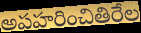
అపహరించితిరేల